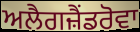
ਅਲੈਗਜ਼ੈਂਡਰੋਵਾ